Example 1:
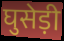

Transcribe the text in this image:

घुसेड़ी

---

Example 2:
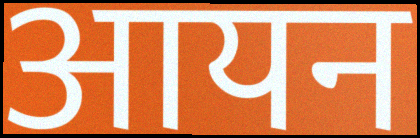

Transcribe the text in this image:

आयन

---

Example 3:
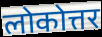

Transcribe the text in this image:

लोकोत्तर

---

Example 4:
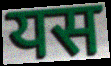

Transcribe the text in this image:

यस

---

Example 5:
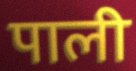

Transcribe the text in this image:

पाली